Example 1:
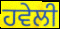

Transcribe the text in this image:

ਹਵੇਲੀ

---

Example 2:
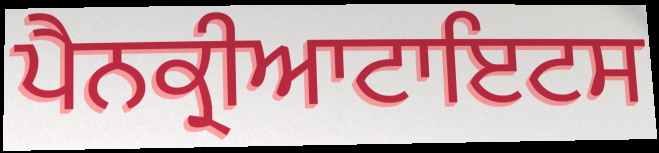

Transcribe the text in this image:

ਪੈਨਕ੍ਰੀਆਟਾਇਟਸ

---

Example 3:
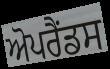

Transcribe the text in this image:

ਅੋਪਰੈਂਡਸ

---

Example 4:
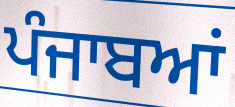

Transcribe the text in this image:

ਪੰਜਾਬਆਂ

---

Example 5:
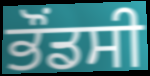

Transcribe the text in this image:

ਭੌਂਡਸੀ